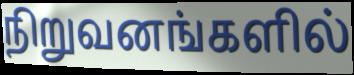
நிறுவனங்களில்